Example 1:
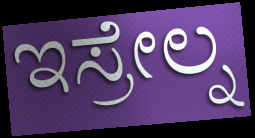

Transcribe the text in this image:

ಇಸ್ರೇಲ್ನ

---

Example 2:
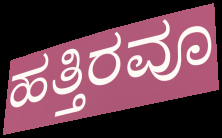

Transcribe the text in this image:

ಹತ್ತಿರವೂ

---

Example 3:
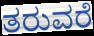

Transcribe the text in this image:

ತರುವರೆ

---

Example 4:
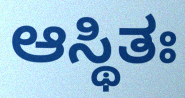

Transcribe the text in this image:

ಆಸ್ಥಿತಃ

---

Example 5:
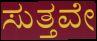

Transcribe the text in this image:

ಸುತ್ತವೇ